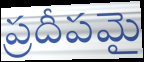
ప్రదీపమై